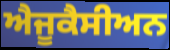
ਐਜੂਕੈਸੀਅਨ